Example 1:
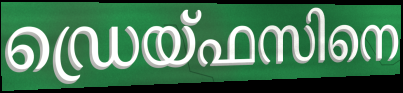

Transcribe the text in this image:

ഡ്രെയ്ഫസിനെ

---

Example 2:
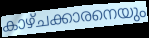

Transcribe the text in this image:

കാഴ്ചക്കാരനെയും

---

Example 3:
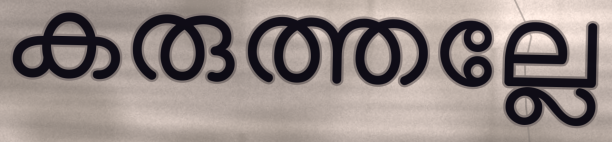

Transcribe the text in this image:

കരുത്തല്ലേ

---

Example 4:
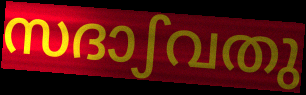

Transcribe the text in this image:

സദാഽവതു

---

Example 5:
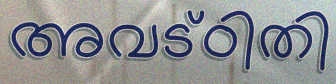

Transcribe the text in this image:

അവട്ഠിതി